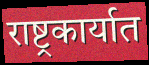
राष्ट्रकार्यात